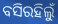
ବସିରହିଲୁଁ